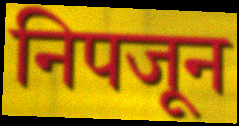
निपजून